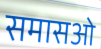
समासओ